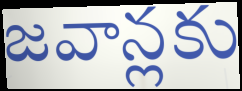
జవాన్లకు